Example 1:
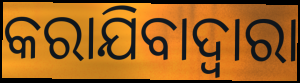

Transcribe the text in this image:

କରାଯିବାଦ୍ୱାରା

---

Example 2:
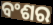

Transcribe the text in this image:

ବଂଶର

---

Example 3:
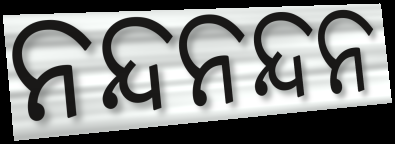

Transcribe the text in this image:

ନନ୍ଦନନ୍ଦନ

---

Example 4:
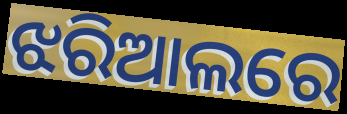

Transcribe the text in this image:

ଝରିଆଲରେ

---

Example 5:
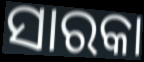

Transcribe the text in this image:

ସାରକା